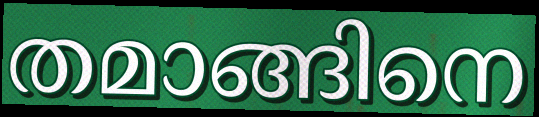
തമാങ്ങിനെ